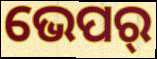
ଭେପର୍